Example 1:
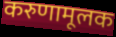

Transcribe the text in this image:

करुणामूलक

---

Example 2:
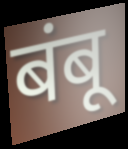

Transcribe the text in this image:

बंबू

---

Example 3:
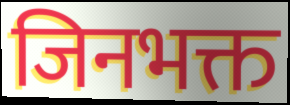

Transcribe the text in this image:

जिनभक्त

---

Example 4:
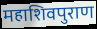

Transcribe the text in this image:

महाशिवपुराण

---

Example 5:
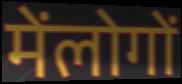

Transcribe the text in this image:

मेंलोगों